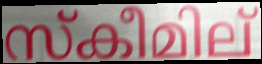
സ്കീമില്